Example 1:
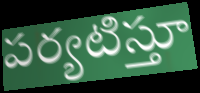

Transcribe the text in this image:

పర్యటిస్తూ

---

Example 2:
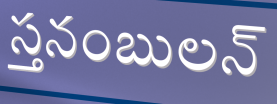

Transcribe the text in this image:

స్తనంబులన్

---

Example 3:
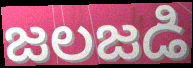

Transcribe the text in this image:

జలజడి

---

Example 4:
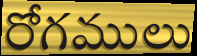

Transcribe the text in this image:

రోగములు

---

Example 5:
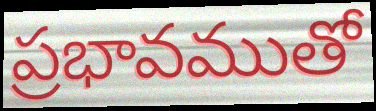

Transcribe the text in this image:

ప్రభావముతో